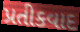
પ્રતીકવાદ